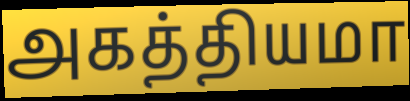
அகத்தியமா